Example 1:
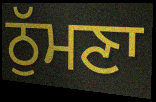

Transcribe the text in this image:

ਠੁੱਮਣਾ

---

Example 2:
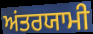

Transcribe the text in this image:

ਅਂਤਰਯਾਮੀ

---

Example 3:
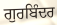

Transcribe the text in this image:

ਗੁਰਬਿੰਦਰ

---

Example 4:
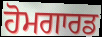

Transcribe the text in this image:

ਹੋਮਗਾਰਡ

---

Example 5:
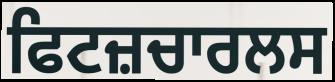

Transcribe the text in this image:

ਫਿਟਜ਼ਚਾਰਲਸ